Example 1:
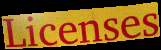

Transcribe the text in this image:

Licenses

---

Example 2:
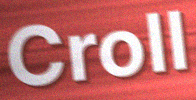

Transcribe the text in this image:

Croll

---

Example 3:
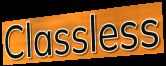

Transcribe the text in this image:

Classless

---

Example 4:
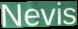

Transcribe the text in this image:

Nevis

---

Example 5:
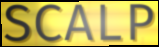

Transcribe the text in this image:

SCALP